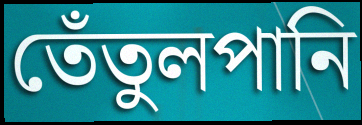
তেঁতুলপানি